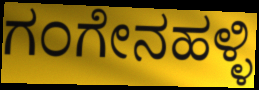
ಗಂಗೇನಹಳ್ಳಿ